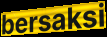
bersaksi